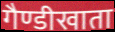
गैण्डीखाता